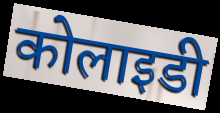
कोलाइडी